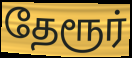
தேரூர்